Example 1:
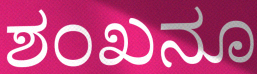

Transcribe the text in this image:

ಶಂಖನೂ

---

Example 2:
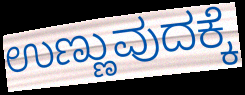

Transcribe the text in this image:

ಉಣ್ಣುವುದಕ್ಕೆ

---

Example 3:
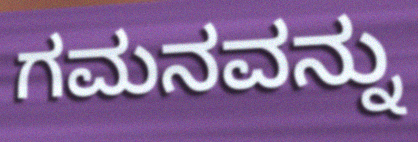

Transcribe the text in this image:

ಗಮನವನ್ನು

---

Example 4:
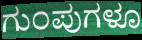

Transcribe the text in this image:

ಗುಂಪುಗಳೂ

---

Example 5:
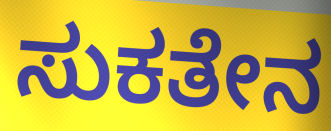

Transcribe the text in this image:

ಸುಕತೇನ